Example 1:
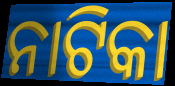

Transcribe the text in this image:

ନାଟିକା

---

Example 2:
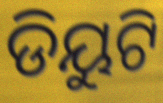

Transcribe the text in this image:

ଡିୟୁଟି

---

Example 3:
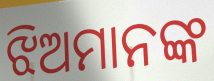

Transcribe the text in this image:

ଝିଅମାନଙ୍କ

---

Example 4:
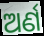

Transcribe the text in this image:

ଅର୍ଣ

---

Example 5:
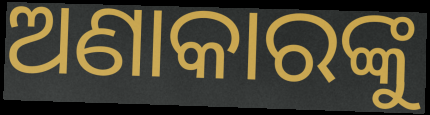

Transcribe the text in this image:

ଅଣାକାରଙ୍କୁ